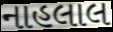
નાહલાલ